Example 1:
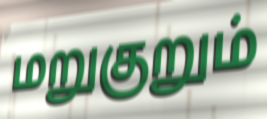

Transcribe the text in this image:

மறுகுறும்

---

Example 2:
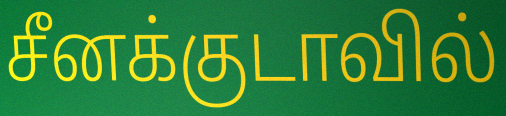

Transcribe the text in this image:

சீனக்குடாவில்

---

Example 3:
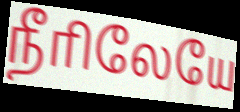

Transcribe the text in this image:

நீரிலேயே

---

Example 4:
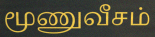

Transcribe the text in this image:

மூணுவீசம்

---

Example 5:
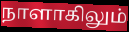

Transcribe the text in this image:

நாளாகிலும்